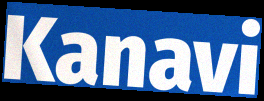
Kanavi